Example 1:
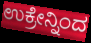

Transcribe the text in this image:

ಉಕ್ರೇನ್ನಿಂದ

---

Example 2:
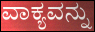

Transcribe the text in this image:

ವಾಕ್ಯವನ್ನು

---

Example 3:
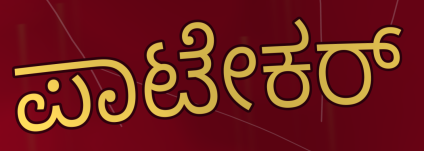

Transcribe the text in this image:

ಪಾಟೇಕರ್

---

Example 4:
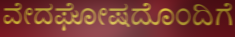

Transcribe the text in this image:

ವೇದಘೋಷದೊಂದಿಗೆ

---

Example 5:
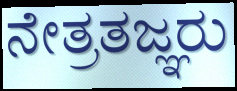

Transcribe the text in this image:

ನೇತ್ರತಜ್ಞರು